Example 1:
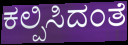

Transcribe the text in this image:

ಕಲ್ಪಿಸಿದಂತೆ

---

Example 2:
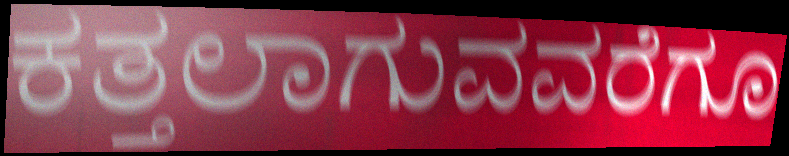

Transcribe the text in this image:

ಕತ್ತಲಾಗುವವರೆಗೂ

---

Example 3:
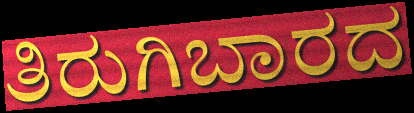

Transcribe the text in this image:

ತಿರುಗಿಬಾರದ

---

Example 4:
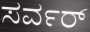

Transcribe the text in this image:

ಸರ್ವರ್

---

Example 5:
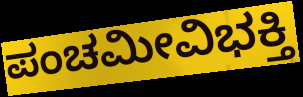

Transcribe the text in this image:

ಪಂಚಮೀವಿಭಕ್ತಿ